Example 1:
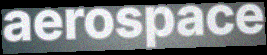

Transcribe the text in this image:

aerospace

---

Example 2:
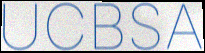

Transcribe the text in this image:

UCBSA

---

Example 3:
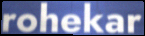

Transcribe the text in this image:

rohekar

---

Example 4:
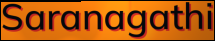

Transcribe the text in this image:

Saranagathi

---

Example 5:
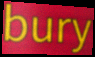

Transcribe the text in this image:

bury